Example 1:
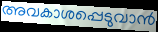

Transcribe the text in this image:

അവകാശപ്പെടുവാൻ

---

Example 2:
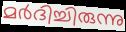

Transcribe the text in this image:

മർദിച്ചിരുന്നു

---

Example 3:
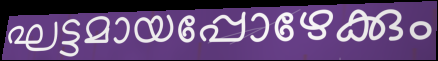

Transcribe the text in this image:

ഘട്ടമായപ്പോഴേക്കും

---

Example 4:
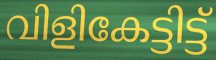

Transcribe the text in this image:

വിളികേട്ടിട്ട്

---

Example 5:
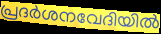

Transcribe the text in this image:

പ്രദർശനവേദിയിൽ